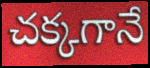
చక్కగానే